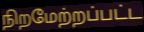
நிறமேற்றப்பட்ட